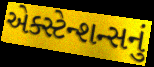
એક્સ્ટેન્શન્સનું